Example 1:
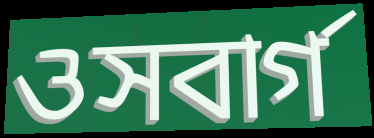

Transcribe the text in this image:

ওসবার্গ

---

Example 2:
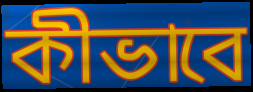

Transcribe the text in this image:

কীভাবে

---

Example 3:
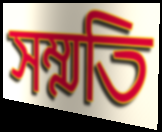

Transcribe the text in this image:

সম্মতি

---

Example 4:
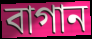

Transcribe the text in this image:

বাগান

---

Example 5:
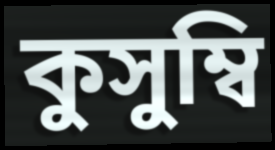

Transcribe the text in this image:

কুসুম্বি